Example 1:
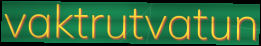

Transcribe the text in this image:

vaktrutvatun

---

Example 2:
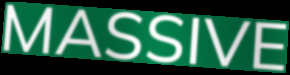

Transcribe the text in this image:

MASSIVE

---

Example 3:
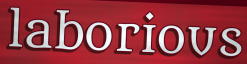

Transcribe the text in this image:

laborious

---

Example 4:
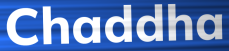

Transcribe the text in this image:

Chaddha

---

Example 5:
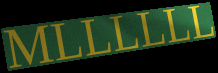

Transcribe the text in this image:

MLLLLLL